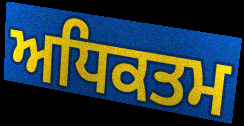
ਅਧਿਕਤਮ